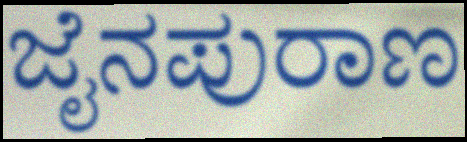
ಜೈನಪುರಾಣ